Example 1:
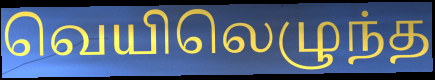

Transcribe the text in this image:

வெயிலெழுந்த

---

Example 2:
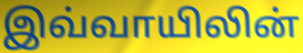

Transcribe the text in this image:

இவ்வாயிலின்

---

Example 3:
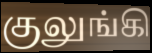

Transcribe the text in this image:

குலுங்கி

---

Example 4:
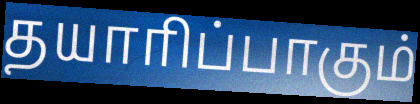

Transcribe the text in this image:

தயாரிப்பாகும்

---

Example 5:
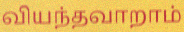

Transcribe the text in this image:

வியந்தவாறாம்